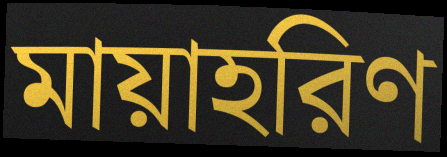
মায়াহরিণ